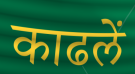
काढलें